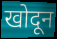
खोदून